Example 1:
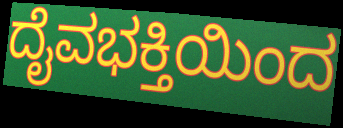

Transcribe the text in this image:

ದೈವಭಕ್ತಿಯಿಂದ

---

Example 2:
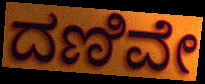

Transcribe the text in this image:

ದಣಿವೇ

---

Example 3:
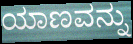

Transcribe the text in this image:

ಯಾಣವನ್ನು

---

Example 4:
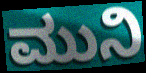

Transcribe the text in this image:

ಮುನಿ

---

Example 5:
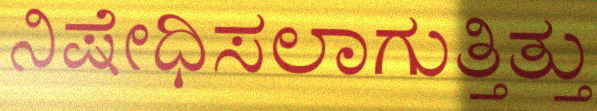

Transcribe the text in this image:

ನಿಷೇಧಿಸಲಾಗುತ್ತಿತ್ತು